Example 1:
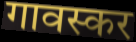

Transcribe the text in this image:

गावस्‍कर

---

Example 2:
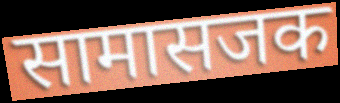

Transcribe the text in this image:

सामासजक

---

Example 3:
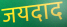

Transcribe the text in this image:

जयदाद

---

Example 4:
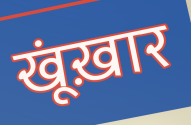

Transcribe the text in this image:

खूंख़ार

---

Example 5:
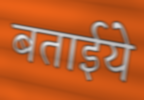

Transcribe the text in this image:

बताईये